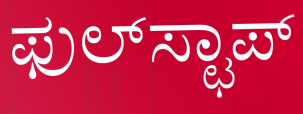
ಫುಲ್‍ಸ್ಟಾಪ್